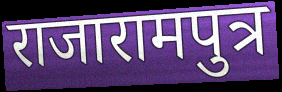
राजारामपुत्र